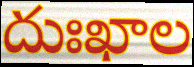
దుఃఖాల